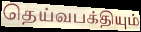
தெய்வபக்தியும்